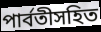
পার্বতীসহিত